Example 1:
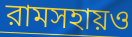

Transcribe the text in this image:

রামসহায়ও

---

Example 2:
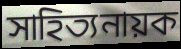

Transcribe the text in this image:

সাহিত্যনায়ক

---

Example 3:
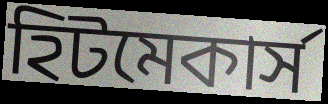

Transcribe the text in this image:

হিটমেকার্স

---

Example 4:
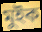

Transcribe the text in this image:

মুইক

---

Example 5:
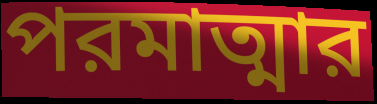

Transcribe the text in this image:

পরমাত্মার